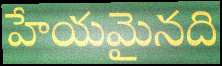
హేయమైనది